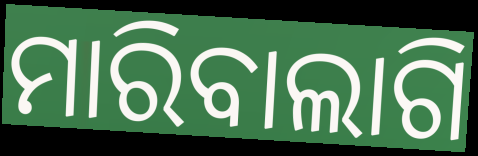
ମାରିବାଲାଗି